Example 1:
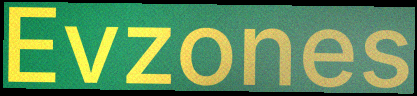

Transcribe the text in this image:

Evzones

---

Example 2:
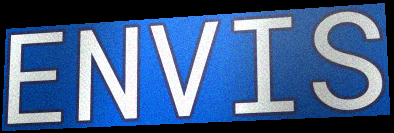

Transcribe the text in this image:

ENVIS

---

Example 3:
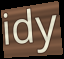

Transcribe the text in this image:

idy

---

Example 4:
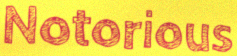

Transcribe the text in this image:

Notorious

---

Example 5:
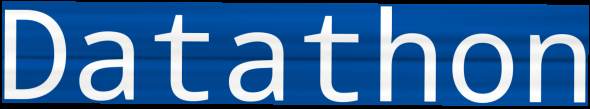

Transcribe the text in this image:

Datathon